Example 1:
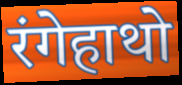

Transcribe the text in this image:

रंगेहाथो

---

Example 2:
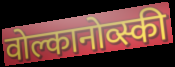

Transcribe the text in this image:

वोल्कानोव्स्की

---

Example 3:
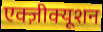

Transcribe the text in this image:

एक्ज़ीक्यूशन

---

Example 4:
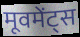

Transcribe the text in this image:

मूवमेंट्स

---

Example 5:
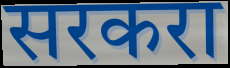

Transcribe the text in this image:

सरकरा